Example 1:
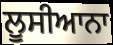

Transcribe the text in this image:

ਲੂਸੀਆਨਾ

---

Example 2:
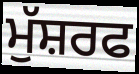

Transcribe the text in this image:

ਮੁੱਸ਼ਰਫ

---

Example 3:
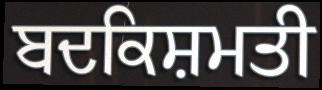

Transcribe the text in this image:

ਬਦਕਿਸ਼ਮਤੀ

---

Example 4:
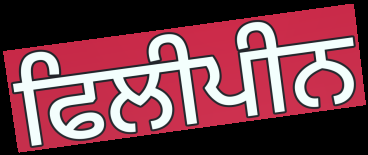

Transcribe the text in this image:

ਫਿਲੀਪੀਨ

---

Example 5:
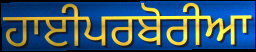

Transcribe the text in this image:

ਹਾਈਪਰਬੋਰੀਆ